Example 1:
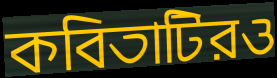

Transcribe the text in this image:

কবিতাটিরও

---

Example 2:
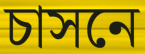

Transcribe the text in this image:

চাসনে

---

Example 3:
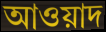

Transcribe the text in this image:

আওয়াদ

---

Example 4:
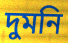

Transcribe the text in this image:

দুমনি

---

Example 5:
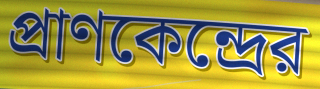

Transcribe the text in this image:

প্রাণকেন্দ্রের